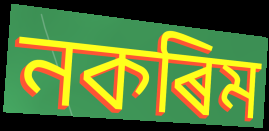
নকৰিম